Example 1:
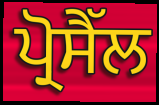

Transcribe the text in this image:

ਪ੍ਰੋਸੈੱਲ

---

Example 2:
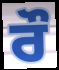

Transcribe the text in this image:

ਰੌ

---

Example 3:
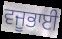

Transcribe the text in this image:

ਵਜੂਭਾਈ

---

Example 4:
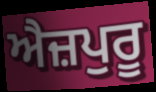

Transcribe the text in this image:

ਐਜ਼ਪੁਰੂ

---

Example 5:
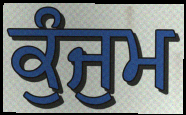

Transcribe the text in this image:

ਕੁੰਜੁਮ